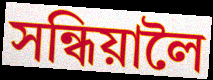
সন্ধিয়ালৈ